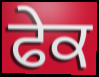
ਫੇਕ